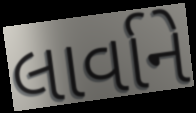
લાર્વાને